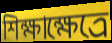
শিক্ষাক্ষেত্রে